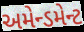
અમેન્ડમેન્ટ